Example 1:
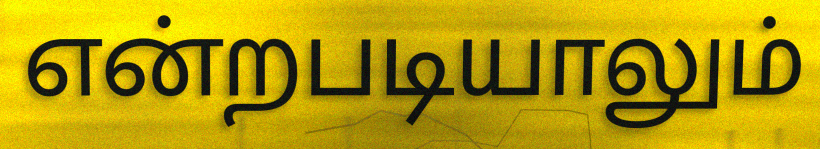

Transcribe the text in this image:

என்றபடியாலும்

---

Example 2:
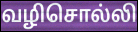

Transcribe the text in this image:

வழிசொல்லி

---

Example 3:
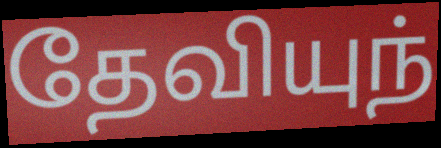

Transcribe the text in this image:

தேவியுந்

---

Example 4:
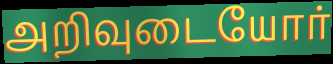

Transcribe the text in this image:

அறிவுடையோர்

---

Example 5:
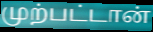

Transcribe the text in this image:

முற்பட்டான்